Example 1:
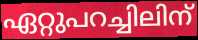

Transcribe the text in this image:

ഏറ്റുപറച്ചിലിന്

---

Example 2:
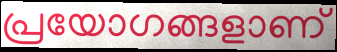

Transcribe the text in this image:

പ്രയോഗങ്ങളാണ്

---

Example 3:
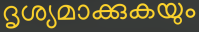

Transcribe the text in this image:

ദൃശ്യമാക്കുകയും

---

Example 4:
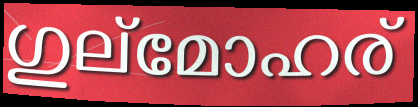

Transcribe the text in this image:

ഗുല്മോഹര്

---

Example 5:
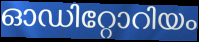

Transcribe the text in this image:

ഓഡിറ്റോറിയം